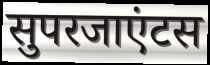
सुपरजाएंटस